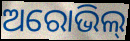
ଅରୋଭିଲ୍